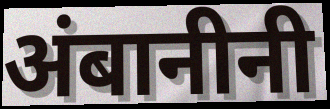
अंबानीनी